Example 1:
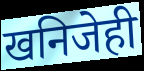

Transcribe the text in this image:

खनिजेही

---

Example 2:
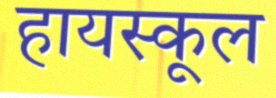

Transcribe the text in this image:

हायस्‍कूल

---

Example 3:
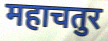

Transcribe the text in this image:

महाचतुर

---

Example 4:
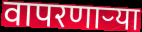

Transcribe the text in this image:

वापरणाऱ्या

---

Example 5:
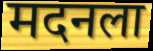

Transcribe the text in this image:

मदनला